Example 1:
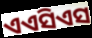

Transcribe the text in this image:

ଏଏସିଏସ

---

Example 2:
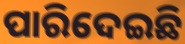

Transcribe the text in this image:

ପାରିଦେଇଛି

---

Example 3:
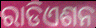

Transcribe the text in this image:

ରାଡିଏଶନ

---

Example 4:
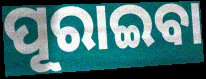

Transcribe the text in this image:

ପୂରାଇବା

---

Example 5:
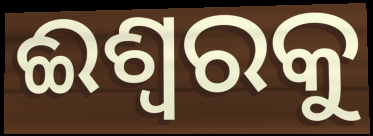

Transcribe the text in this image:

ଈଶ୍ୱରକୁ